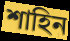
শাহিন